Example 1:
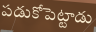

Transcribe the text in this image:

పడుకోపెట్టాడు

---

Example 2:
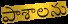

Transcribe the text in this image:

పాశాలను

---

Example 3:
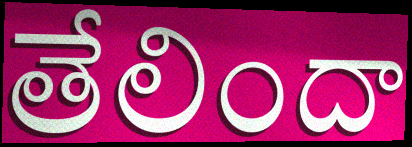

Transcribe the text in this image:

తేలిందా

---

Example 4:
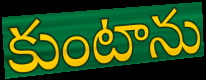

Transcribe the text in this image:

కుంటాను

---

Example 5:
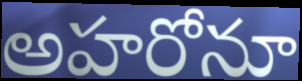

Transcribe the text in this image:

అహరోనూ